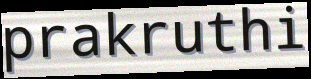
prakruthi